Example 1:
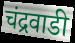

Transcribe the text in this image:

चंद्रवाडी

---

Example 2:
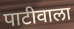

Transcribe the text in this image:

पाटीवाला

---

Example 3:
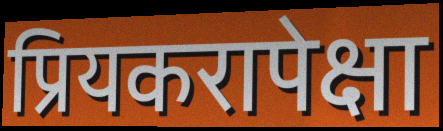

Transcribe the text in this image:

प्रियकरापेक्षा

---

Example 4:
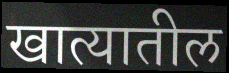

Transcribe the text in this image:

खात्यातील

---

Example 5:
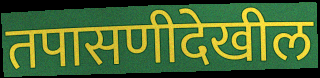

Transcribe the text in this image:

तपासणीदेखील